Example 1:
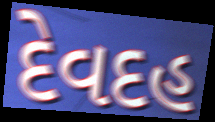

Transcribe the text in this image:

દેવદહ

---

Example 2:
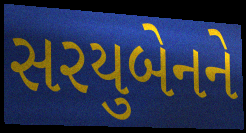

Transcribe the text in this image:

સરયુબેનને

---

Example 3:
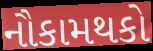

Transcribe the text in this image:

નૌકામથકો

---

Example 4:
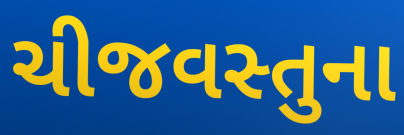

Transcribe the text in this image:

ચીજવસ્તુના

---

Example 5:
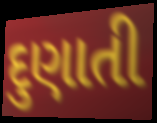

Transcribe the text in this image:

દુણાતી